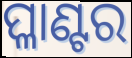
ପ୍ଳାଣ୍ଟର